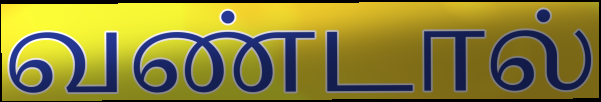
வண்டால்